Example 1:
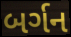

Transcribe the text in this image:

બર્ગન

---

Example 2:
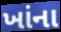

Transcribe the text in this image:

ખાંના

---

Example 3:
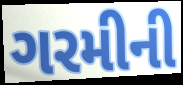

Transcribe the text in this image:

ગરમીની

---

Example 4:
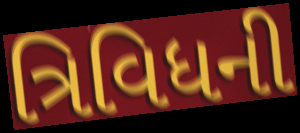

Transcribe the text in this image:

ત્રિવિધની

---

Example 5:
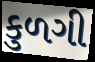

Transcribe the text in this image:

કુળગી